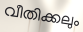
വീതിക്കലും